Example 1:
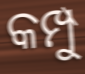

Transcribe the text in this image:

କମ୍ପୁ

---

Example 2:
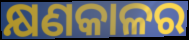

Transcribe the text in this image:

କ୍ଷଣକାଳର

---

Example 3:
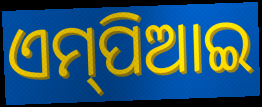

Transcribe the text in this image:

ଏମ୍‌ପିଆଇ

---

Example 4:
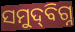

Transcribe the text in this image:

ସମୁଦ୍‌ବିଗ୍ନ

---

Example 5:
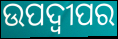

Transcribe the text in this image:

ଉପଦ୍ୱୀପର